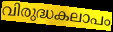
വിരുദ്ധകലാപം